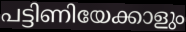
പട്ടിണിയേക്കാളും